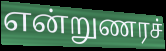
என்றுணரச்